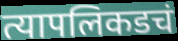
त्यापलिकडचं